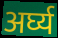
अर्घ्य